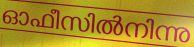
ഓഫീസിൽനിന്നു